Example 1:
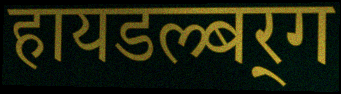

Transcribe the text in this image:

हायडल्बर्ग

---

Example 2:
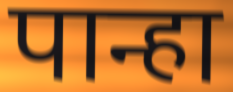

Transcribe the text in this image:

पान्हा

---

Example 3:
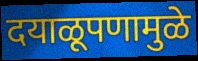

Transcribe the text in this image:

दयाळूपणामुळे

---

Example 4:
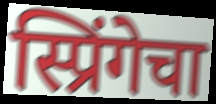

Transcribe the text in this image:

स्प्रिंगेचा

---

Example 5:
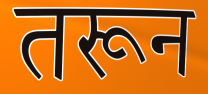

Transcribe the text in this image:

तरून